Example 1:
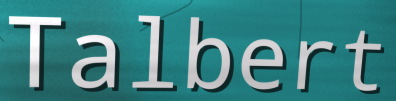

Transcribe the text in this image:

Talbert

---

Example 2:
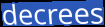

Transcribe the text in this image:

decrees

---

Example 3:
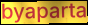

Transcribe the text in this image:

byaparta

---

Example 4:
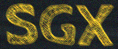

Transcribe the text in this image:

SGX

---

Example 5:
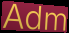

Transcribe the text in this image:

Adm